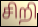
சிறி